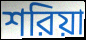
শরিয়া